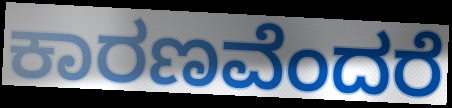
ಕಾರಣವೆಂದರೆ